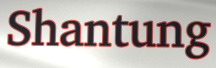
Shantung